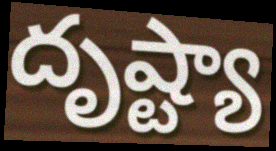
దృష్ట్యా